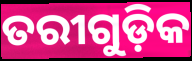
ତରୀଗୁଡ଼ିକ